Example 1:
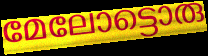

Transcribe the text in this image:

മേലോട്ടൊരു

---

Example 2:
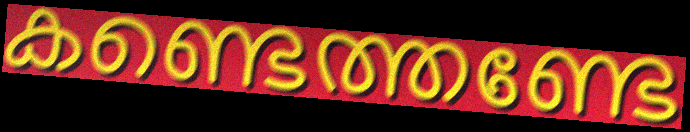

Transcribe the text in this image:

കണ്ടെത്തണ്ടേ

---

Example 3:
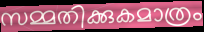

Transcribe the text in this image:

സമ്മതിക്കുകമാത്രം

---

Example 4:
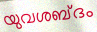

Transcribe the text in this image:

യുവശബ്ദം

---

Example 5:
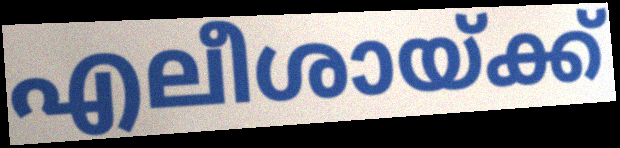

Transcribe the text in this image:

എലീശായ്ക്ക്